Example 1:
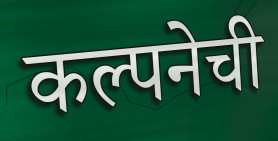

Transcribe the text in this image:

कल्पनेची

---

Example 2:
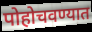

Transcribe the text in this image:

पोहोचवण्यात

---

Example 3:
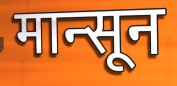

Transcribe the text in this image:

मान्सून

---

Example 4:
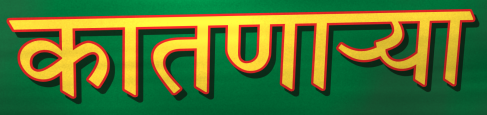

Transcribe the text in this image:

कातणाऱ्या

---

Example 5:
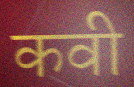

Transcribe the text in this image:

कवी